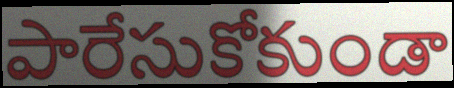
పారేసుకోకుండా